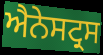
ਐਨੇਸਟ੍ਰਸ